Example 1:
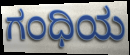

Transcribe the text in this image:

ಗಂಧಿಯ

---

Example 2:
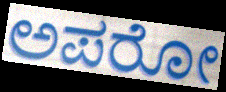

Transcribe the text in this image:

ಅಪರೋ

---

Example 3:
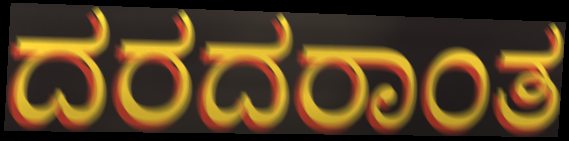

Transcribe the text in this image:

ದರದರಾಂತ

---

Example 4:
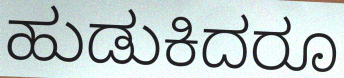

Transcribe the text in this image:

ಹುಡುಕಿದರೂ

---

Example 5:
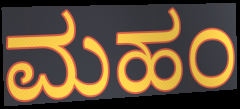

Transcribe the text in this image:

ಮಹಂ